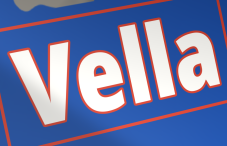
Vella